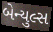
બેન્યુલ્સ